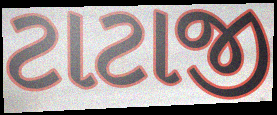
ટાટાજી